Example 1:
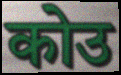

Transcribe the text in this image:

कोउ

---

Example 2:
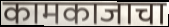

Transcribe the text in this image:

कामकाजाचा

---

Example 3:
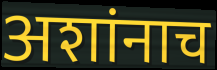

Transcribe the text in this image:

अशांनाच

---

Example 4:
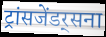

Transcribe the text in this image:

ट्रांसजेंडर्सना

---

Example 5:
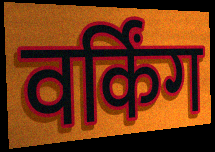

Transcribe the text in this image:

वर्किंग